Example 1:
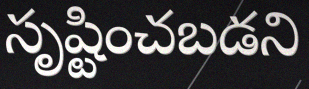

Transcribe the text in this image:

సృష్టించబడని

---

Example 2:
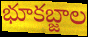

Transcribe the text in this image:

భూకబ్జాల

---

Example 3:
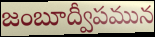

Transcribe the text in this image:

జంబూద్వీపమున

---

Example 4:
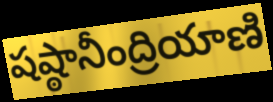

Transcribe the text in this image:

షష్ఠానీంద్రియాణి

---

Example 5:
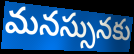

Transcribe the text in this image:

మనస్సునకు